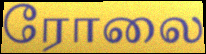
ரோலை